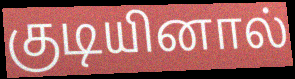
குடியினால்